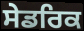
ਸੇਡਰਿਕ